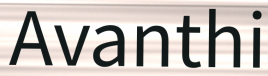
Avanthi